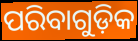
ପରିବାଗୁଡ଼ିକ